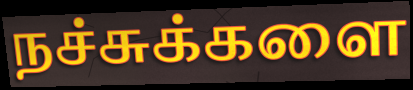
நச்சுக்களை